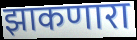
झाकणारा